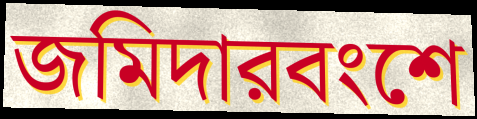
জমিদারবংশে